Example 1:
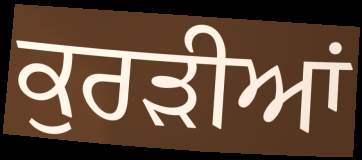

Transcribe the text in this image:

ਕੁਰੜੀਆਂ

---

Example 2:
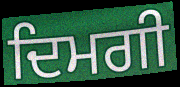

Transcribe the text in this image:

ਦਿਮਗੀ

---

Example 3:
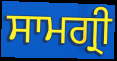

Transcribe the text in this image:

ਸਾਮਗ੍ਰੀ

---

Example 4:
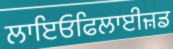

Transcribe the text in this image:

ਲਾਇਓਫਿਲਾਈਜ਼ਡ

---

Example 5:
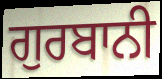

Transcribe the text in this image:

ਗੁਰਬਾਨੀ